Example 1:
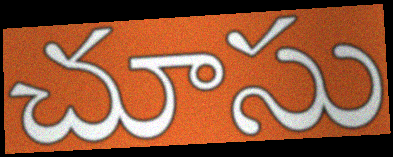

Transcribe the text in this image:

చూసు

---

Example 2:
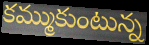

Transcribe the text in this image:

కమ్ముకుంటున్న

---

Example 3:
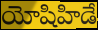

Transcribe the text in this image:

యోషిహిడే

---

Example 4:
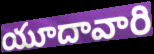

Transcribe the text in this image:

యూదావారి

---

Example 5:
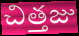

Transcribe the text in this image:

చిత్తజు